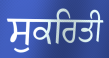
ਸੁਕਰਿਤੀ